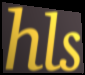
hls